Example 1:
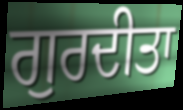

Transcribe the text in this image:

ਗੁਰਦੀਤਾ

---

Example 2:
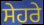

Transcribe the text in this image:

ਸੇਹਰੇ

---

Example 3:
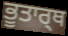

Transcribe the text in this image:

ਭੂਤਾਰ੍ਥ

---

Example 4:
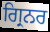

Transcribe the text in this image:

ਗ੍ਰਿਨਰ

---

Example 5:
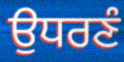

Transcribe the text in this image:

ਉਧਰਣੰ